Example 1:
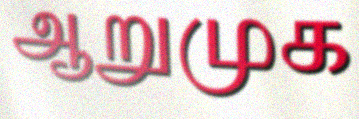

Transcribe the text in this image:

ஆறுமுக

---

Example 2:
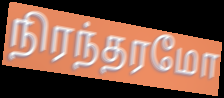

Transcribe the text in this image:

நிரந்தரமோ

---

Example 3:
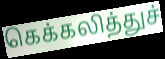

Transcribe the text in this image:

கெக்கலித்துச்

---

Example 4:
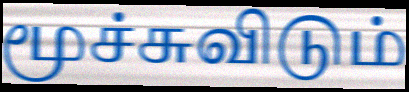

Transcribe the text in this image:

மூச்சுவிடும்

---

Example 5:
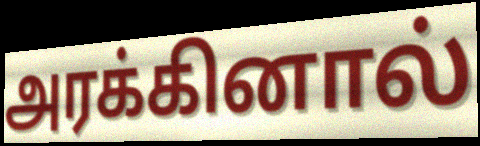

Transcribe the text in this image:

அரக்கினால்